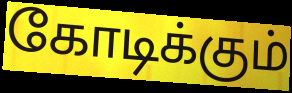
கோடிக்கும்